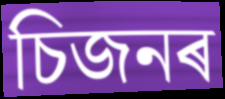
চিজনৰ